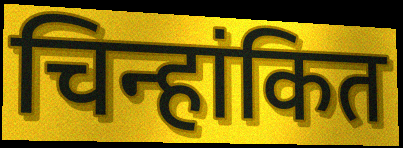
चिन्हांकित